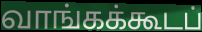
வாங்கக்கூடப்